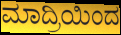
ಮಾದ್ರಿಯಿಂದ